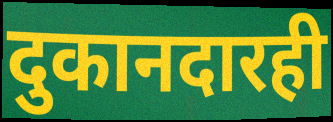
दुकानदारही